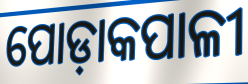
ପୋଡ଼ାକପାଳୀ